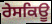
ਰੇਸਕਿਊ